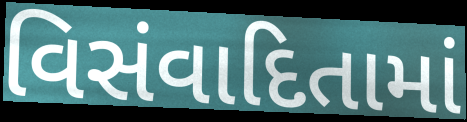
વિસંવાદિતામાં